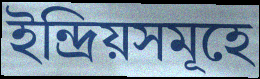
ইন্দ্রিয়সমূহে